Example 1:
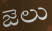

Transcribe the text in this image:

జెలు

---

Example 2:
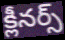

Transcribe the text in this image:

క్లీనర్స్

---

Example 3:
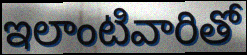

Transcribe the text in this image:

ఇలాంటివారితో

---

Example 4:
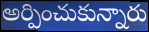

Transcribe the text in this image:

అర్పించుకున్నారు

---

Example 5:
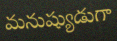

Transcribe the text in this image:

మనుష్యుడుగా